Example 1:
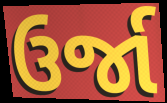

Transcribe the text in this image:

ઉર્જા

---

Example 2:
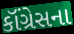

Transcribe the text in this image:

કૉંગ્રેસના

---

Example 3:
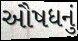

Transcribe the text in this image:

ઔષધનું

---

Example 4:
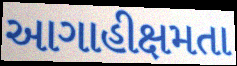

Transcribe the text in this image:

આગાહીક્ષમતા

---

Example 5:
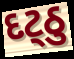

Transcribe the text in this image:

દટ્ઠુ